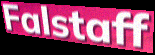
Falstaff